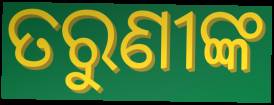
ତରୁଣୀଙ୍କ